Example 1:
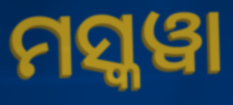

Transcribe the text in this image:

ମସ୍କୱା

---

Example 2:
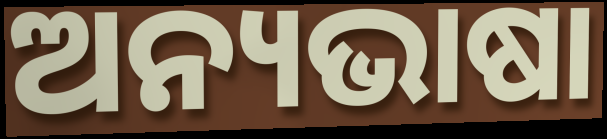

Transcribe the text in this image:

ଅନ୍ୟଭାଷା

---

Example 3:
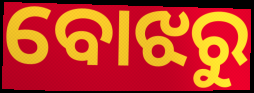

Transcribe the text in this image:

ବୋଝରୁ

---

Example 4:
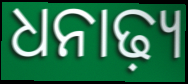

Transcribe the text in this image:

ଧନାଢ଼୍ୟ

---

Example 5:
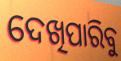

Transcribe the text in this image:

ଦେଖିପାରିବୁ